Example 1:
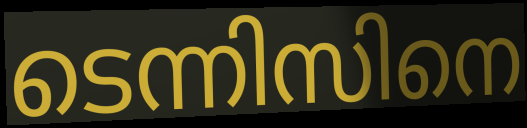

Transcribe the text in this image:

ടെന്നിസിനെ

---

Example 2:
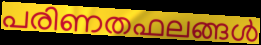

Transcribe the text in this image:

പരിണതഫലങ്ങൾ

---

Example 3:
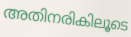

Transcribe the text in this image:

അതിനരികിലൂടെ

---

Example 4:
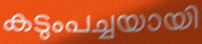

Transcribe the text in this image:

കടുംപച്ചയായി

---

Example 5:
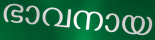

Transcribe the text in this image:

ഭാവനായ